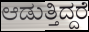
ಆಡುತ್ತಿದ್ದರೆ